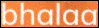
bhalaa